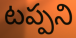
టప్పని